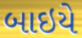
બાઇયે